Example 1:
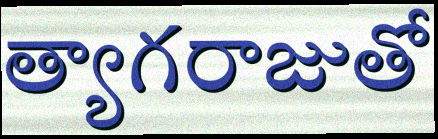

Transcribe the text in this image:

త్యాగరాజుతో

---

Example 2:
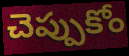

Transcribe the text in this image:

చెప్పుకోం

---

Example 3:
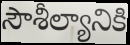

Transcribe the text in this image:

సౌశీల్యానికి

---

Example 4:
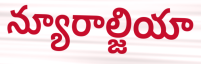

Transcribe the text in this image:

న్యూరాల్జియా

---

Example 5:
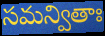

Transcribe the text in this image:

సమన్వితాః